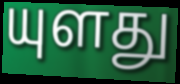
யுளது